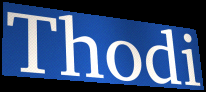
Thodi